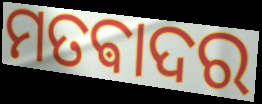
ମତଵାଦର